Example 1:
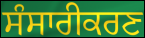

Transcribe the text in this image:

ਸੰਸਾਰੀਕਰਣ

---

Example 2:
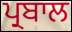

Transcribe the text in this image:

ਪ੍ਰਬਾਲ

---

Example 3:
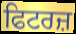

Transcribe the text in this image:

ਫਿਟਰਜ਼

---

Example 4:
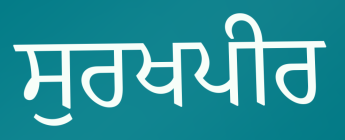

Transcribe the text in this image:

ਸੁਰਖਪੀਰ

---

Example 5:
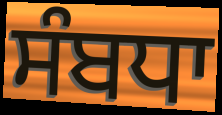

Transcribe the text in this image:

ਸੰਬਧਾ